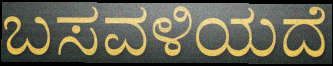
ಬಸವಳಿಯದೆ